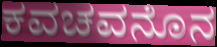
ಕವಚವನೊನ